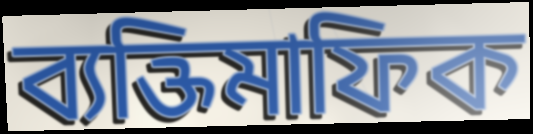
ব্যক্তিমাফিক